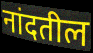
नांदतील